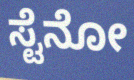
ಸ್ಟೆನೋ